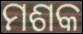
ମଶକ